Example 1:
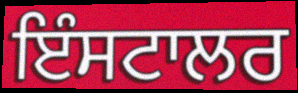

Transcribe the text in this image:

ਇੰਸਟਾਲਰ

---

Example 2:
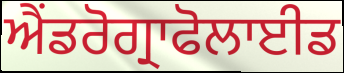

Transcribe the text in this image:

ਐਂਡਰੋਗ੍ਰਾਫੋਲਾਈਡ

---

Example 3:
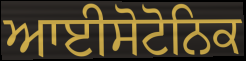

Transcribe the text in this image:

ਆਈਸੋਟੋਨਿਕ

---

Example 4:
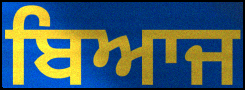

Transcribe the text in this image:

ਬਿਆਜ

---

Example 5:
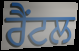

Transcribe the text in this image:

ਰੈਂਟਲ